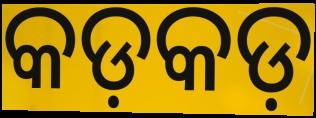
କଡ଼କଡ଼